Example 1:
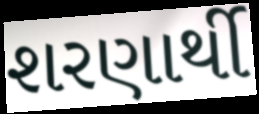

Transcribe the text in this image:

શરણાર્થી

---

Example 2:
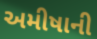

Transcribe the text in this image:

અમીષાની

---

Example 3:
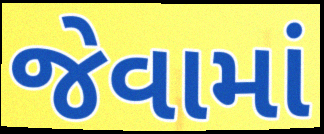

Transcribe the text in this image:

જેવામાં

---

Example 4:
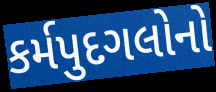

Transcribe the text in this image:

કર્મપુદગલોનો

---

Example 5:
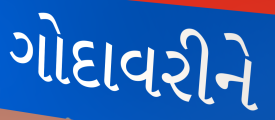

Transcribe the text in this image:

ગોદાવરીને